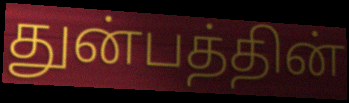
துன்பத்தின்